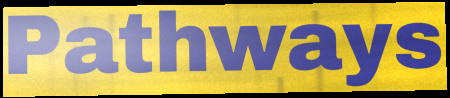
Pathways